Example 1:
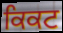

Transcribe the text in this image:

ਕਿਕਟ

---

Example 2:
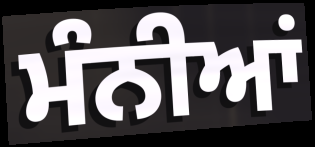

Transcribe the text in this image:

ਮੰਨੀਆਂ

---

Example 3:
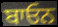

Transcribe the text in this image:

ਬਾਓਨ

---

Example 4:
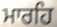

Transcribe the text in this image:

ਮਾਰਹਿ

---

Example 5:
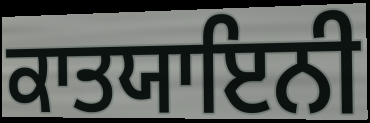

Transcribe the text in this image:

ਕਾਤਯਾਇਨੀ